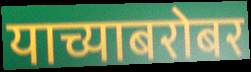
याच्याबरोबर